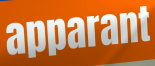
apparant